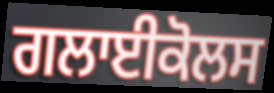
ਗਲਾਈਕੋਲਸ